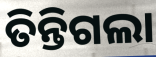
ତିନ୍ତିଗଲା